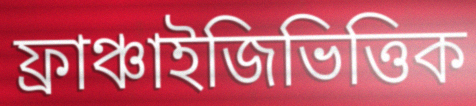
ফ্রাঞ্চাইজিভিত্তিক